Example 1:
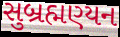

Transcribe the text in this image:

સુબ્રહ્મણ્યન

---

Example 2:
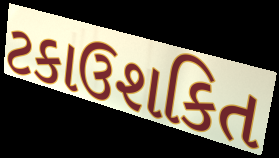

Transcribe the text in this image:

ટકાઉશકિત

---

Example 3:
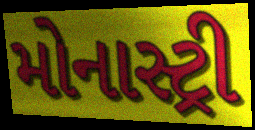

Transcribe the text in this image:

મોનાસ્ટ્રી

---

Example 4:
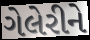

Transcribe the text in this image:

ગેલેરીને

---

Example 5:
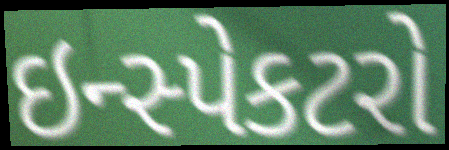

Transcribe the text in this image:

ઇન્સ્પેકટરો